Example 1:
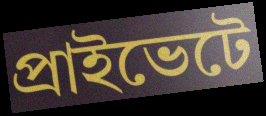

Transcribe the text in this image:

প্রাইভেটে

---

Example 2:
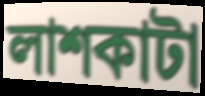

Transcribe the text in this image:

লাশকাটা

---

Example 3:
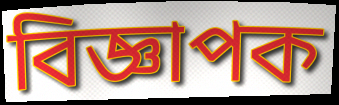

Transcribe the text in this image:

বিজ্ঞাপক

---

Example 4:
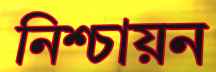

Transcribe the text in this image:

নিশ্চায়ন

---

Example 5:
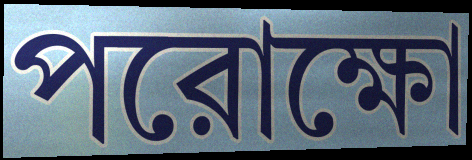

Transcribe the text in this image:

পরোক্ষো